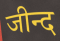
जीन्द